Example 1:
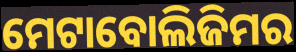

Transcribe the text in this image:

ମେଟାବୋଲିଜିମର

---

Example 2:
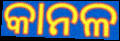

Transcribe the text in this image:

କାନଳ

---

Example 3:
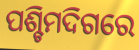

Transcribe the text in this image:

ପଶ୍ଚିମଦିଗରେ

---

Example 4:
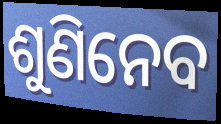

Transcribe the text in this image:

ଶୁଣିନେବ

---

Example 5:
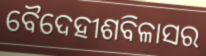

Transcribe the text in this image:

ବୈଦେହୀଶବିଳାସର